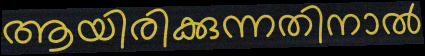
ആയിരിക്കുന്നതിനാൽ